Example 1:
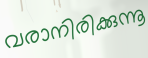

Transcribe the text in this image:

വരാനിരിക്കുന്നൂ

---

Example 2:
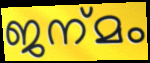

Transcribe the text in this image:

ജന്‌മം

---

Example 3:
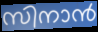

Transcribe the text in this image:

സിനാൻ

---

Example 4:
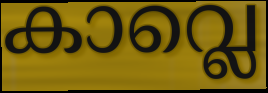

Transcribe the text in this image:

കാവ്ലെ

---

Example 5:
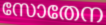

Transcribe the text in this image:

സോതേന